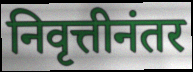
निवृत्तीनंतर